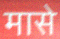
मासे